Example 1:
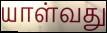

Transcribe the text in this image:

யாள்வது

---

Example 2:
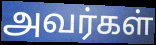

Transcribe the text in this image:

அவர்கள்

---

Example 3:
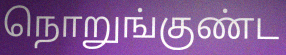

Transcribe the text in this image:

நொறுங்குண்ட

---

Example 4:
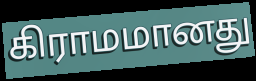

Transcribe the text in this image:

கிராமமானது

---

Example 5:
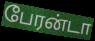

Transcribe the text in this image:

பேரன்டா